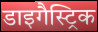
डाइगैस्ट्रिक